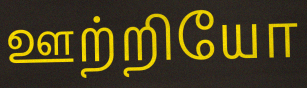
ஊற்றியோ